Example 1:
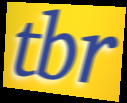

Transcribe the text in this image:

tbr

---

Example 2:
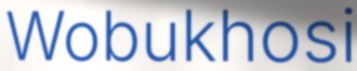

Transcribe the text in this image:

Wobukhosi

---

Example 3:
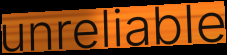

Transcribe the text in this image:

unreliable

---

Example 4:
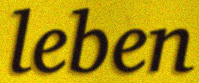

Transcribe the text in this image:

leben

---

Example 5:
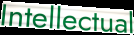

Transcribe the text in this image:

Intellectual